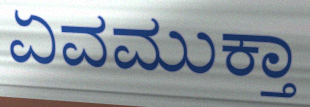
ಏವಮುಕ್ತಾ